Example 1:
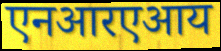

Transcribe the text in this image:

एनआरएआय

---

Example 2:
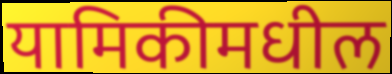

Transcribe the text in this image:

यामिकीमधील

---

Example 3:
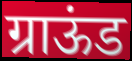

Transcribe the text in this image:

ग्राऊंड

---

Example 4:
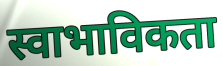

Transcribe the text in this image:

स्वाभाविकता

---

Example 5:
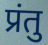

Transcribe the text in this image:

प्रंतु